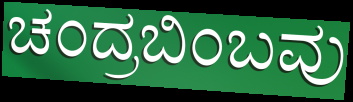
ಚಂದ್ರಬಿಂಬವು